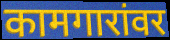
कामगारांवर